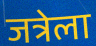
जत्रेला